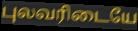
புலவரிடையே